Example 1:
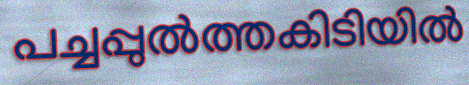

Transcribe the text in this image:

പച്ചപ്പുൽത്തകിടിയിൽ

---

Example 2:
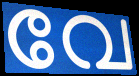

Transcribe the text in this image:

വേ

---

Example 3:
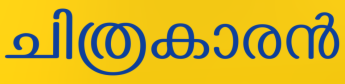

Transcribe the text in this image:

ചിത്രകാരൻ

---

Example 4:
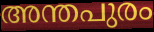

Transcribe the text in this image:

അന്തപുരം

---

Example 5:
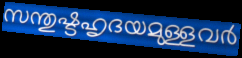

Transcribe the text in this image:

സന്തുഷ്ടഹൃദയമുള്ളവർ